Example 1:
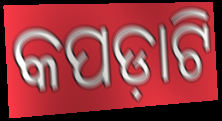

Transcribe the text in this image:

କପଡ଼ାଟି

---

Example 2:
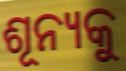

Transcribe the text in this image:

ଶୂନ୍ୟକୁ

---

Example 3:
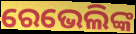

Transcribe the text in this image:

ରେଭେଲିଙ୍କ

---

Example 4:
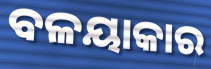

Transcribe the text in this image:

ବଳୟାକାର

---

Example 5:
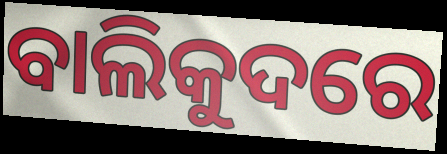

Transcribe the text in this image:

ବାଲିକୁଦରେ